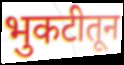
भुकटीतून